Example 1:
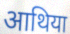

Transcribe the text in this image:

आथिया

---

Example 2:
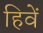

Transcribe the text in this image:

हिवें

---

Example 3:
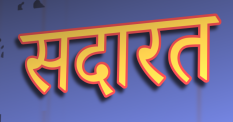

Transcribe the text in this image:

सदारत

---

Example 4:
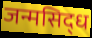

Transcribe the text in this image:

जन्‍मसिद्ध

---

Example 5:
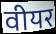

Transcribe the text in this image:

वीयर